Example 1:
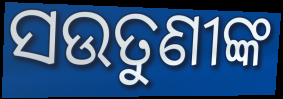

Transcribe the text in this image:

ସଉତୁଣୀଙ୍କ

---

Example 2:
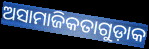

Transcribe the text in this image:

ଅସାମାଜିକତାଗୁଡ଼ାକ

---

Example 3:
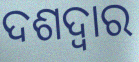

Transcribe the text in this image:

ଦଶଦ୍ୱାର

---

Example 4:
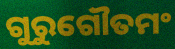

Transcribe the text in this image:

ଗୁରୁଗୌତମଂ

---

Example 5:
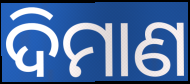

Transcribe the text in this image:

ଦିମାଣ